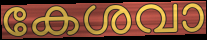
കേശവാ